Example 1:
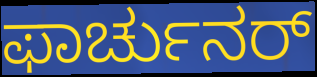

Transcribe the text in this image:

ಫಾರ್ಚುನರ್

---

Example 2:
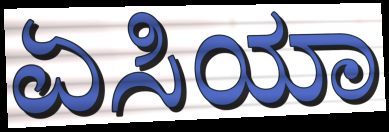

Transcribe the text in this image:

ಏಸಿಯಾ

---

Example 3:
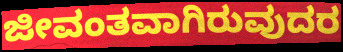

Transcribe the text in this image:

ಜೀವಂತವಾಗಿರುವುದರ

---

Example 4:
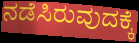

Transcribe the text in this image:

ನಡೆಸಿರುವುದಕ್ಕೆ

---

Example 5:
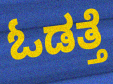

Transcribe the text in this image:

ಓಡತ್ತೆ